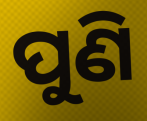
ପୁଣି